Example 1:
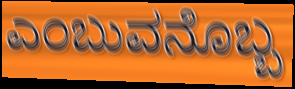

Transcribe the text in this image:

ಎಂಬುವನೊಬ್ಬ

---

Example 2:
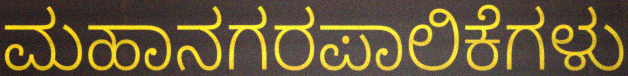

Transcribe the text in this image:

ಮಹಾನಗರಪಾಲಿಕೆಗಳು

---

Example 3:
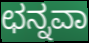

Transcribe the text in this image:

ಛನ್ನವಾ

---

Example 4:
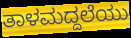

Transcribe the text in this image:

ತಾಳಮದ್ದಲೆಯು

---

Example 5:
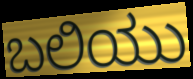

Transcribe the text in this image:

ಬಲಿಯು